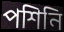
পশিনি